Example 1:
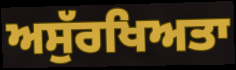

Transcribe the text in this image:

ਅਸੁੱਰਖਿਅਤਾ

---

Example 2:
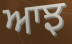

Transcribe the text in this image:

ਆਝ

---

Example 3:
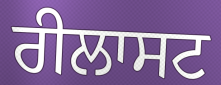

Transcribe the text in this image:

ਰੀਲਾਸਟ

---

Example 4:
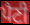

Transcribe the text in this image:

ਪੈਣੀ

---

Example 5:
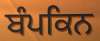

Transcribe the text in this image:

ਬੰਪਕਿਨ